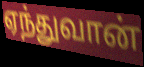
ஏந்துவான்